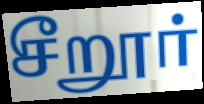
சீறூர்